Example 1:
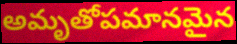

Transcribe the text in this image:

అమృతోపమానమైన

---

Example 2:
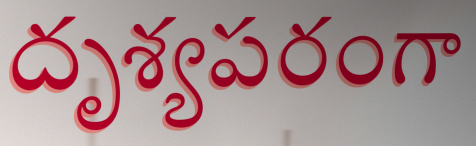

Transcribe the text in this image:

దృశ్యపరంగా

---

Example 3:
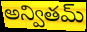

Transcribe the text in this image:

అన్వితమ్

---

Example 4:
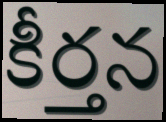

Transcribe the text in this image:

కీర్తన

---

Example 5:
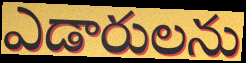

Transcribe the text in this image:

ఎడారులను